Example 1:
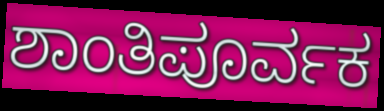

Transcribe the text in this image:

ಶಾಂತಿಪೂರ್ವಕ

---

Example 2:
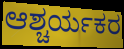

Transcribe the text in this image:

ಆಶ್ಚರ್ಯಕರ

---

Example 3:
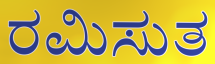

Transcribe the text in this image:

ರಮಿಸುತ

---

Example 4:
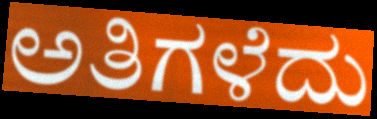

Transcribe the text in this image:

ಅತಿಗಳೆದು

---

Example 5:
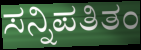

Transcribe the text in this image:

ಸನ್ನಿಪತಿತಂ